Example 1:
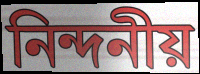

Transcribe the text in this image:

নিন্দনীয়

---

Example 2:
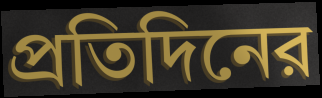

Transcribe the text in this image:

প্রতিদিনের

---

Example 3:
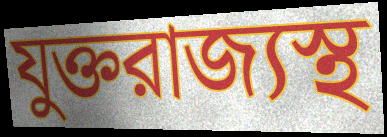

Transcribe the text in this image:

যুক্তরাজ্যস্থ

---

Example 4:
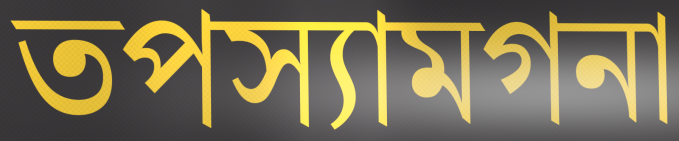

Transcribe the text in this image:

তপস্যামগনা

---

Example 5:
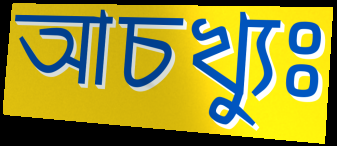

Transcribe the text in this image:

আচখ্যুঃ